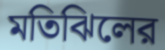
মতিঝিলের